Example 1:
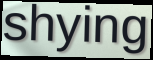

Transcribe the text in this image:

shying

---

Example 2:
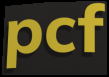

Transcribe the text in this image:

pcf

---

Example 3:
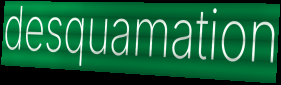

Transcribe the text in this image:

desquamation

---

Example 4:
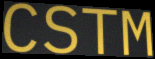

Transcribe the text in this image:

CSTM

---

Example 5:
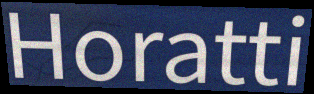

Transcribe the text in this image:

Horatti